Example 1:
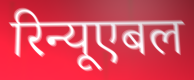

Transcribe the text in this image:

रिन्यूएबल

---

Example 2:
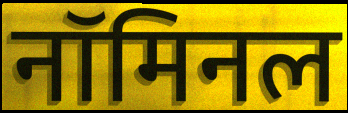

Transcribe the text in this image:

नॉमिनल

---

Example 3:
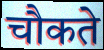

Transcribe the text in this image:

चौकते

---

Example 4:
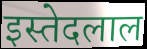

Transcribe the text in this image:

इस्तेदलाल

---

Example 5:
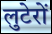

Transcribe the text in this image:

लुटेरों